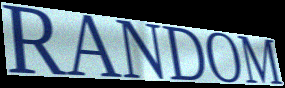
RANDOM